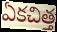
ఏకచిత్త